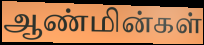
ஆண்மின்கள்